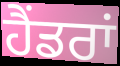
ਹੈਂਡਰਾਂ